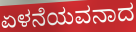
ಏಳನೆಯವನಾದ